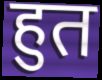
हुत